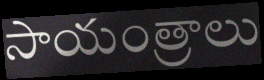
సాయంత్రాలు